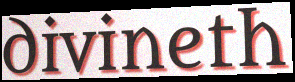
divineth